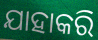
ଯାହାକରି